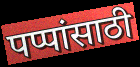
पप्पांसाठी